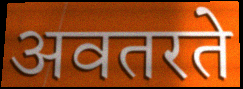
अवतरते